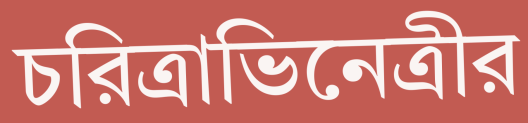
চরিত্রাভিনেত্রীর